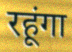
रहूंगा